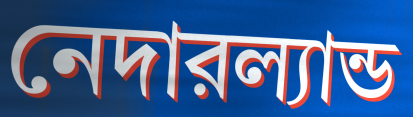
নেদারল্যান্ড